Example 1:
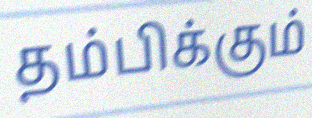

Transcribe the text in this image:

தம்பிக்கும்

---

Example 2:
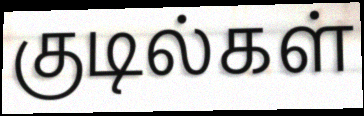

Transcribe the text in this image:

குடில்கள்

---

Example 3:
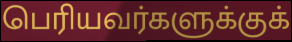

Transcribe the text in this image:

பெரியவர்களுக்குக்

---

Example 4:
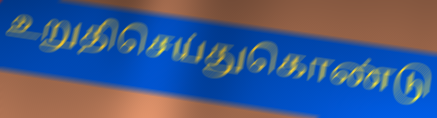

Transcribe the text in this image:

உறுதிசெய்துகொண்டு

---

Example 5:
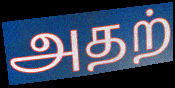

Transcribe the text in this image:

அதற்